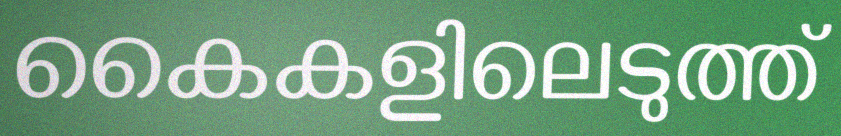
കൈകളിലെടുത്ത്